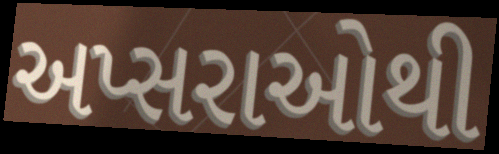
અપ્સરાઓથી